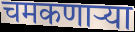
चमकणाऱ्या